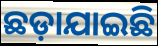
ଛଡ଼ାଯାଇଛି